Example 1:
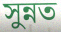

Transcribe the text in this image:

সুন্নত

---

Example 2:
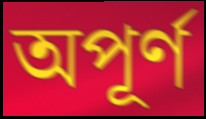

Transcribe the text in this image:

অপূর্ণ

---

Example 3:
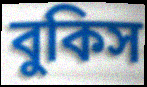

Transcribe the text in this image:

বুকিস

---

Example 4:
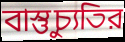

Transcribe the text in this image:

বাস্তুচ্যুতির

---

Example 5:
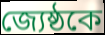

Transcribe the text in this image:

জ্যেষ্ঠকে